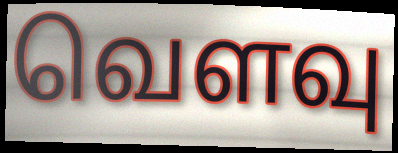
வெளவு